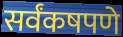
सर्वंकषपणे